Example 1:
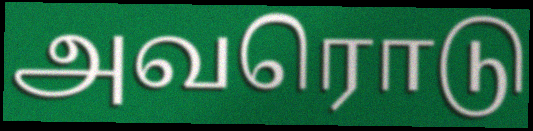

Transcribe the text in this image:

அவரொடு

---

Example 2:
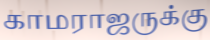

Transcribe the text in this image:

காமராஜருக்கு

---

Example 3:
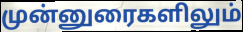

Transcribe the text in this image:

முன்னுரைகளிலும்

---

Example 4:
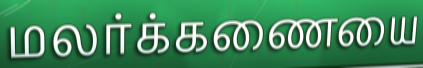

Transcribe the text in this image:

மலர்க்கணையை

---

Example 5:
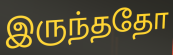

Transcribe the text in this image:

இருந்ததோ